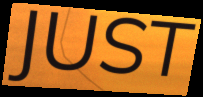
JUST